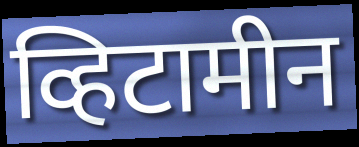
व्हिटामीन